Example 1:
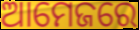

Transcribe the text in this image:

ଆମେଜରେ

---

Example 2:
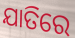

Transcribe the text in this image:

ଯାତିରେ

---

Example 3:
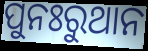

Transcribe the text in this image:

ପୁନଃରୁଥାନ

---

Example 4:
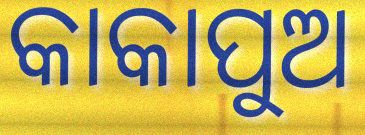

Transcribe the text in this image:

କାକାପୁଅ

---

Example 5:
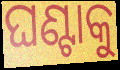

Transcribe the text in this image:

ଘଣ୍ଟାକୁ